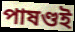
পাষণ্ডই